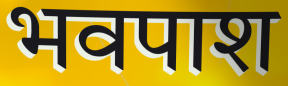
भवपाश